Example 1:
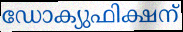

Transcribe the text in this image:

ഡോക്യുഫിക്ഷന്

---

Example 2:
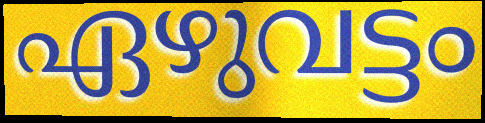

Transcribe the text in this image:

ഏഴുവട്ടം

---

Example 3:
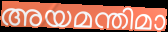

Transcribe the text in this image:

അയമന്തിമാ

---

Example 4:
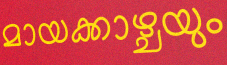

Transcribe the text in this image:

മായക്കാഴ്ചയും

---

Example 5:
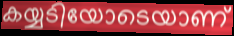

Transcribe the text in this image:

കയ്യടിയോടെയാണ്